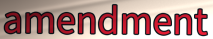
amendment